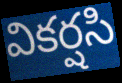
వికర్షసి